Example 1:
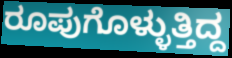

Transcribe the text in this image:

ರೂಪುಗೊಳ್ಳುತ್ತಿದ್ದ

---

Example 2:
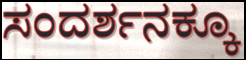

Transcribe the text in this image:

ಸಂದರ್ಶನಕ್ಕೂ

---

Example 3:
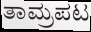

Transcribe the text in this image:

ತಾಮ್ರಪಟ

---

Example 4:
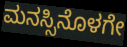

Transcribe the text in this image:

ಮನಸ್ಸಿನೊಳಗೇ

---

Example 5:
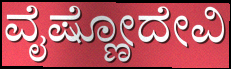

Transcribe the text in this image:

ವೈಷ್ಣೋದೇವಿ